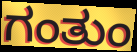
ಗಂತುಂ